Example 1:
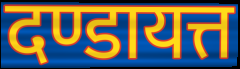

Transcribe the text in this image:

दण्डायत्त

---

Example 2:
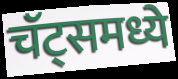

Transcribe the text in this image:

चॅट्समध्ये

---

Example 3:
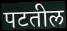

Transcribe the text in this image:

पटतील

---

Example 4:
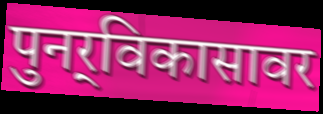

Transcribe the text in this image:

पुनर्विकासावर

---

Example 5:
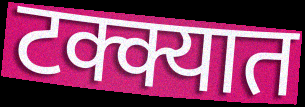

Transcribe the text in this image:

टक्क्यात